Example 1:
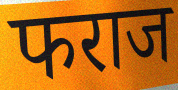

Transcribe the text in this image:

फराज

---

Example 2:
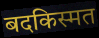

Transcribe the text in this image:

बदकिस्‍मत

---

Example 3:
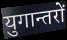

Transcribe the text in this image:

युगान्तरों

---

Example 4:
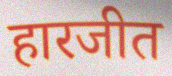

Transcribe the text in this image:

हारजीत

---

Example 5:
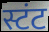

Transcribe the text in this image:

स्टंट